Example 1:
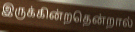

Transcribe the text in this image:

இருக்கின்றதென்றால்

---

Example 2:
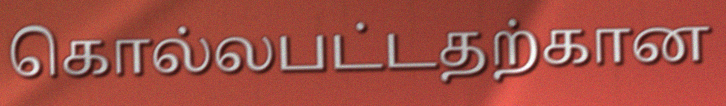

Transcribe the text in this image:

கொல்லபட்டதற்கான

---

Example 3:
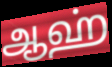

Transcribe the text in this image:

ஆஹ்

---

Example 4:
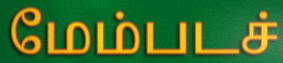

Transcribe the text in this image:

மேம்படச்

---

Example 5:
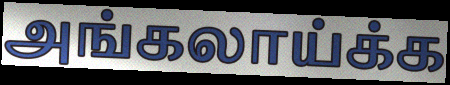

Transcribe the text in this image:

அங்கலாய்க்க